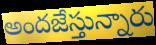
అందజేస్తున్నారు